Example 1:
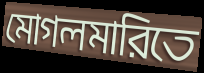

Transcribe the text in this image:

মোগলমারিতে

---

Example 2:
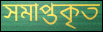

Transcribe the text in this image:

সমাপ্তকৃত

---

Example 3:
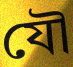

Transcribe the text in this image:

যৌ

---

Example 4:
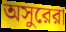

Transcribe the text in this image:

অসুরেরা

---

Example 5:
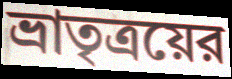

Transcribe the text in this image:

ভ্রাতৃত্রয়ের